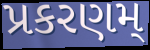
પ્રકરણમ્